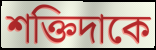
শক্তিদাকে